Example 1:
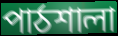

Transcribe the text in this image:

পাঠশালা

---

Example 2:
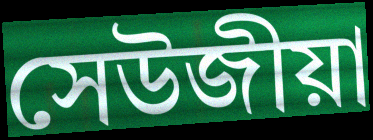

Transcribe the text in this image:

সেউজীয়া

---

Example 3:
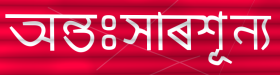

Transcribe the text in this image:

অন্তঃসাৰশূন্য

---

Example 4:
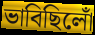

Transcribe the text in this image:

ভাবিছিলোঁ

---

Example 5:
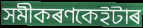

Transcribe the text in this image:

সমীকৰণকেইটাৰ